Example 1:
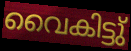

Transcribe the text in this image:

വൈകിട്ടു്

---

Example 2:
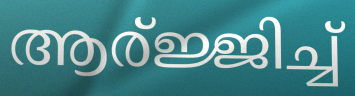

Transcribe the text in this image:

ആര്ജ്ജിച്ച്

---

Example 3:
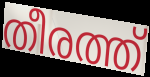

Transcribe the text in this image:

തീരത്ത്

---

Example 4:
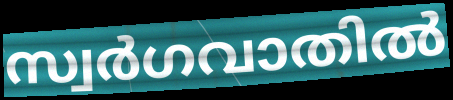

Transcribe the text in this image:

സ്വർഗവാതിൽ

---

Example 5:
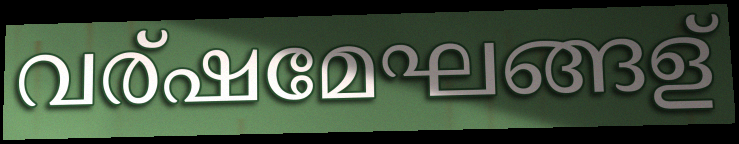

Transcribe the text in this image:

വര്ഷമേഘങ്ങള്